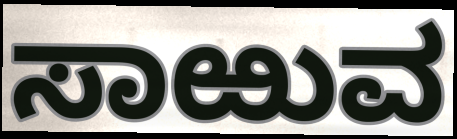
ಸಾಱುವ